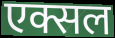
एक्सल